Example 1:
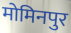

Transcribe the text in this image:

मोमिनपुर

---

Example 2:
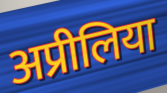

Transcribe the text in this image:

अप्रीलिया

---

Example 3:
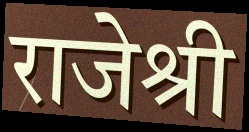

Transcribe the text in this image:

राजेश्री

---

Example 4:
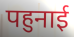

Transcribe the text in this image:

पहुनाई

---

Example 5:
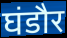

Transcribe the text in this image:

घंडौर